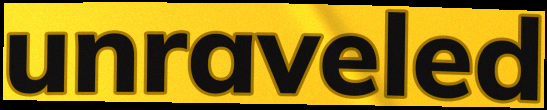
unraveled